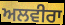
ਅਲਵੀਰਾ